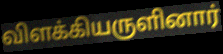
விளக்கியருளினார்